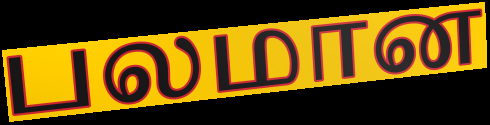
பலமான